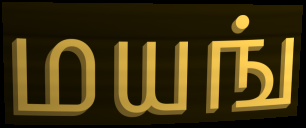
மயங்